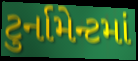
ટુર્નામેન્ટમાં